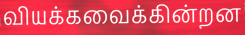
வியக்கவைக்கின்றன